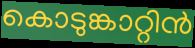
കൊടുങ്കാറ്റിൻ